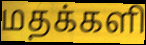
மதக்களி